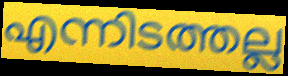
എന്നിടത്തല്ല